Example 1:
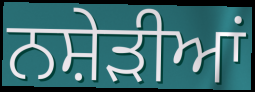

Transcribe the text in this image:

ਨਸ਼ੇੜੀਆਂ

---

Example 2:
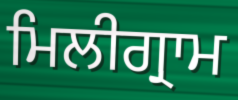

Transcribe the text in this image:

ਮਿਲੀਗ੍ਰਾਮ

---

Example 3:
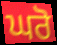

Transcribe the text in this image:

ਘਰੋ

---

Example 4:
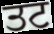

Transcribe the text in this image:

ਤਟ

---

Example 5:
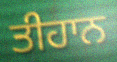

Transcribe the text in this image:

ਤੀਹਾਨ